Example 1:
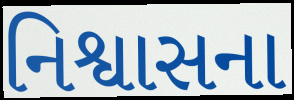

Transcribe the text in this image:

નિશ્વાસના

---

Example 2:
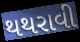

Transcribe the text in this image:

થથરાવી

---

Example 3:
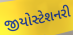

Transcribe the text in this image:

જીયોસ્ટેશનરી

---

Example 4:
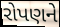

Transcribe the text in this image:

રોપણને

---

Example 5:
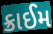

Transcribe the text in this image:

ક્રાઈમ